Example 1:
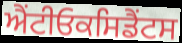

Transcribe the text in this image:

ਐਂਟੀਓਕਸਿਡੈਂਟਸ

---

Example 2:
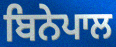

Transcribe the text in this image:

ਬਿਨੇਪਾਲ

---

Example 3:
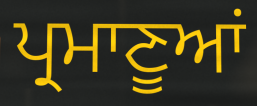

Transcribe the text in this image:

ਪ੍ਰਮਾਣੂਆਂ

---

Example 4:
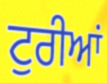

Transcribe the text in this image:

ਟੁਰੀਆਂ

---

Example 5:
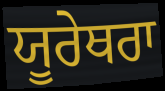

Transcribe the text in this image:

ਯੂਰੇਥਰਾ